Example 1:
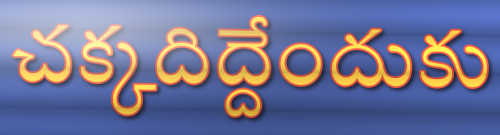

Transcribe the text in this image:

చక్కదిద్దేందుకు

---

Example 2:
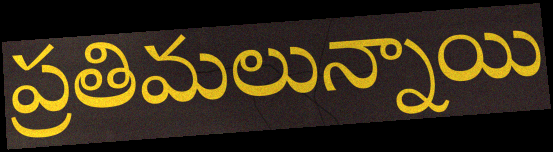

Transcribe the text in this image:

ప్రతిమలున్నాయి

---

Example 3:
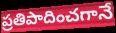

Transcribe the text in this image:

ప్రతిపాదించగానే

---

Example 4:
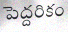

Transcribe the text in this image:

పెద్దరికం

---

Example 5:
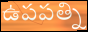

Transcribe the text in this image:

ఉపపత్ని